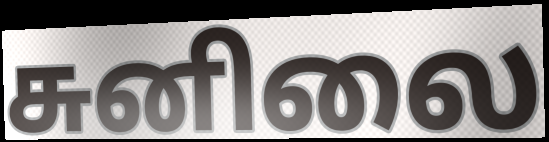
சுனிலை